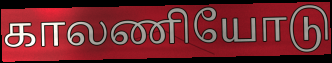
காலணியோடு